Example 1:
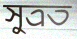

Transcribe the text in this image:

সুত্ৰত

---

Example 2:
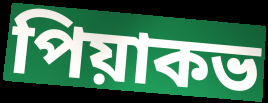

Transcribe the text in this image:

পিয়াকভ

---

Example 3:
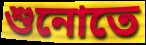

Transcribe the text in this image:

শুনোতে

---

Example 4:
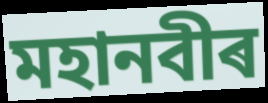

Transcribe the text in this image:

মহানবীৰ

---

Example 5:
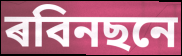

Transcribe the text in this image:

ৰবিনছনে